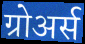
ग्रोअर्स